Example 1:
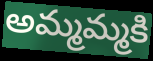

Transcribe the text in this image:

అమ్మమ్మకి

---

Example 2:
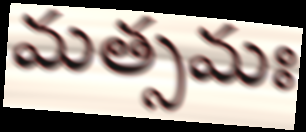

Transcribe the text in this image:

మత్సమః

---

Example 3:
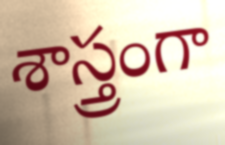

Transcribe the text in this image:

శాస్త్రంగా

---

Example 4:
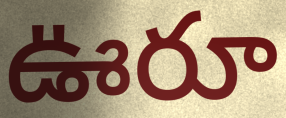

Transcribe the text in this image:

ఊరూ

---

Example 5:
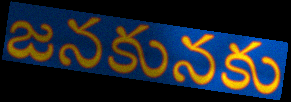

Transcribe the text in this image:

జనకునకు